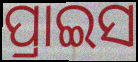
ପ୍ରାଇସ